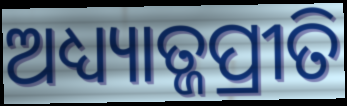
ଅଧ୍ୟ୍ୟାତ୍ଜପ୍ରୀତି